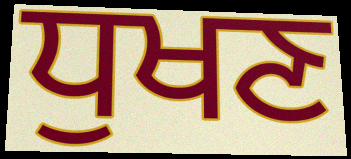
ਧੁਖਣ